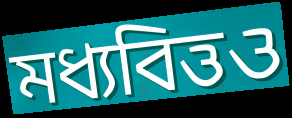
মধ্যবিত্তও